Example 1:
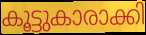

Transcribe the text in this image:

കൂട്ടുകാരാക്കി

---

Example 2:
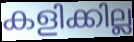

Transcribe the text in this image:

കളിക്കില്ല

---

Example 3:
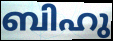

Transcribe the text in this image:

ബിഹു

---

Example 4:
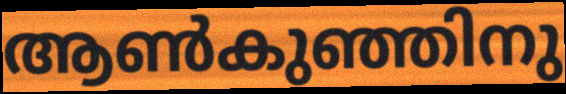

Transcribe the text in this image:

ആൺകുഞ്ഞിനു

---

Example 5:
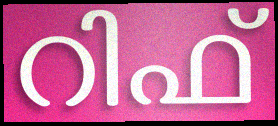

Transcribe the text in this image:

റിഫ്